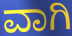
ವಾಗಿ